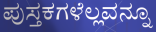
ಪುಸ್ತಕಗಳೆಲ್ಲವನ್ನೂ